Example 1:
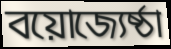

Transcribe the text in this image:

বয়োজ্যেষ্ঠা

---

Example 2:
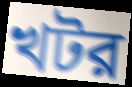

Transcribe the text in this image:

খটর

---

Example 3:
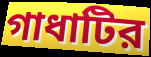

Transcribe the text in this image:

গাধাটির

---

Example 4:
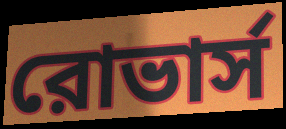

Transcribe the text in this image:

রোভার্স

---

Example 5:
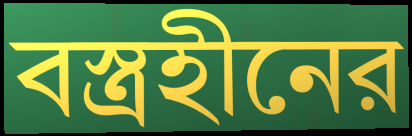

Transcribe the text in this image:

বস্ত্রহীনের